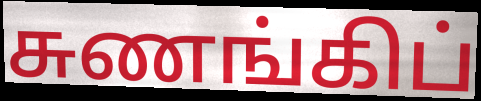
சுணங்கிப்